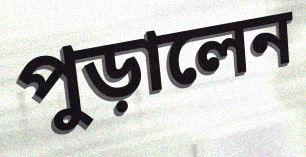
পুড়ালেন